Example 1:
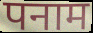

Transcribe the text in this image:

पनाम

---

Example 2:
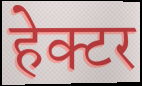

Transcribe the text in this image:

हेक्टर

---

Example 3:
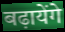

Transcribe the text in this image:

बढ़ायेंगे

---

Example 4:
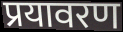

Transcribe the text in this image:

प्रयावरण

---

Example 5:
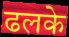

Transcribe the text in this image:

ढलके